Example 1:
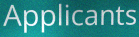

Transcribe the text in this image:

Applicants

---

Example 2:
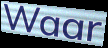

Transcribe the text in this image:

Waar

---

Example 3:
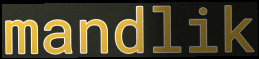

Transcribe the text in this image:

mandlik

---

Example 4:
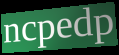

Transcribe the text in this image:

ncpedp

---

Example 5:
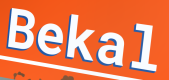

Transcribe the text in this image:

Bekal